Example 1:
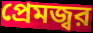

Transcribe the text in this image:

প্রেমজ্বর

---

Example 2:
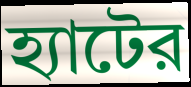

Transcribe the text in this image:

হ্যাটের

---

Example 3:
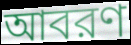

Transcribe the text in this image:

আবরণ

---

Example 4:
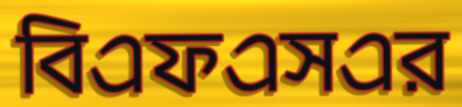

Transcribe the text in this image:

বিএফএসএর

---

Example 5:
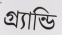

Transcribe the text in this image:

গ্র্যান্ডি